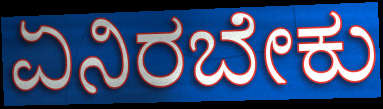
ಏನಿರಬೇಕು